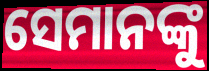
ସେମାନଙ୍କୁ